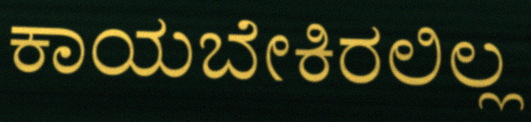
ಕಾಯಬೇಕಿರಲಿಲ್ಲ